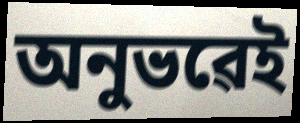
অনুভৱেই